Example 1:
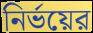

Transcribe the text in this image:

নির্ভয়ের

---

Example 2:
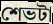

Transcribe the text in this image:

শেভটা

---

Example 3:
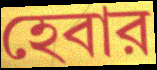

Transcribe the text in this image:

হেবার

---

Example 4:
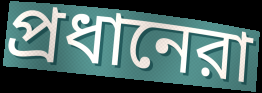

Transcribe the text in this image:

প্রধানেরা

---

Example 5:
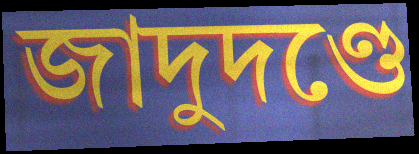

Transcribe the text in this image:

জাদুদণ্ডে